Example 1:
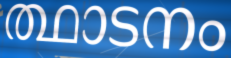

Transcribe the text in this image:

ത്ഥാടനം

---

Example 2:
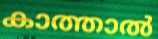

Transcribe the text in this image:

കാത്താൽ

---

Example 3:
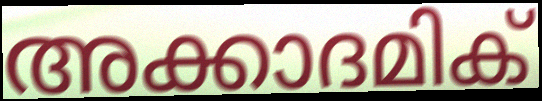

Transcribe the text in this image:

അക്കാദമിക്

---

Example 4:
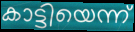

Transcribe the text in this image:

കാട്ടിയെന്ന്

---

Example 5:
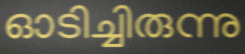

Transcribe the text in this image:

ഓടിച്ചിരുന്നു